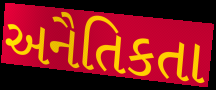
અનૈતિકતા